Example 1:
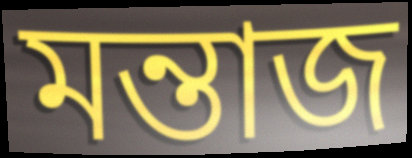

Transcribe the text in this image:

মন্তাজ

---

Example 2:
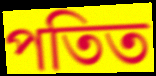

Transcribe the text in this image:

পতিত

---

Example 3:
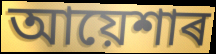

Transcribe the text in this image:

আয়েশাৰ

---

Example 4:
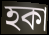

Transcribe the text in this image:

হকা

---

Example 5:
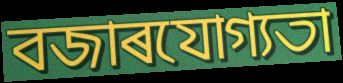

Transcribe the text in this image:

বজাৰযোগ্যতা